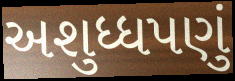
અશુધ્ધપણું